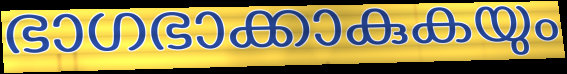
ഭാഗഭാക്കാകുകയും